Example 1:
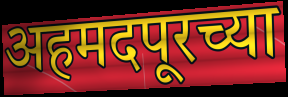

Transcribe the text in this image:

अहमदपूरच्या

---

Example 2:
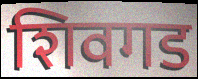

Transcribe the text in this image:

शिवगड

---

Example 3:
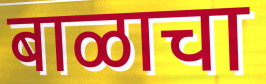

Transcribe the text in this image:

बाळाचा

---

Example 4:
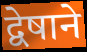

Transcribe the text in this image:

द्वेषाने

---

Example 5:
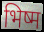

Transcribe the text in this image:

भिष्म